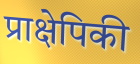
प्राक्षेपिकी